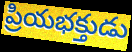
ప్రియభక్తుడు